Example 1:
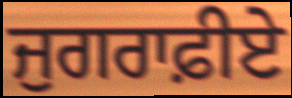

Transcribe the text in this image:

ਜੁਗਰਾਫ਼ੀਏ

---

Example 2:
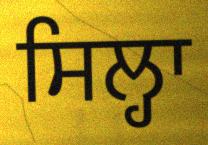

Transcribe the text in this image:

ਸਿਲ੍ਹਾ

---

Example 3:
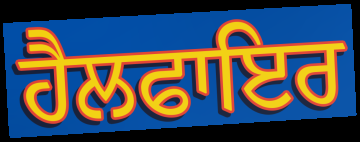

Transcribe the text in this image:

ਹੈਲਫਾਇਰ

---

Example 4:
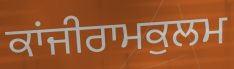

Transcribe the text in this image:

ਕਾਂਜੀਰਾਮਕੁਲਮ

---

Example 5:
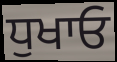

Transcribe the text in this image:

ਧੁਖਾਓ